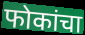
फोकांचा